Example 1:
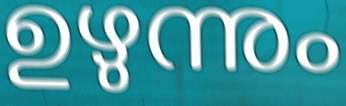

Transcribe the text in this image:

ഉഴുന്നും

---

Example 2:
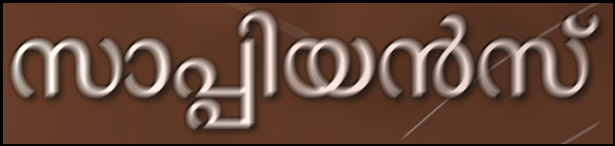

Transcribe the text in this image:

സാപ്പിയൻസ്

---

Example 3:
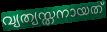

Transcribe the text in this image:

വ്യത്യസ്തനായത്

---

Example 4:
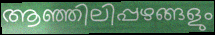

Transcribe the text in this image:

ആഞ്ഞിലിപ്പഴങ്ങളും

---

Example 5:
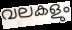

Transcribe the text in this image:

വലകളും